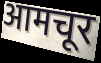
आमचूर